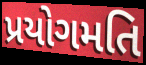
પ્રયોગમતિ